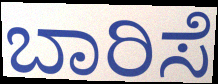
ಬಾರಿಸೆ